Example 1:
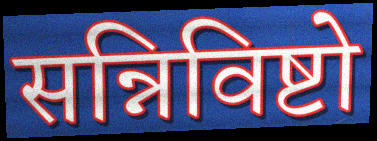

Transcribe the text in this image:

सन्निविष्टो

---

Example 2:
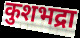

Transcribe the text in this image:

कुशभद्रा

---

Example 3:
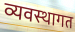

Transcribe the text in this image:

व्यवस्थागत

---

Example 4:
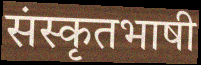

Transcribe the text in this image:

संस्कृतभाषी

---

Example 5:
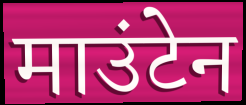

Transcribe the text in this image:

माउंटेन